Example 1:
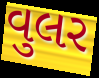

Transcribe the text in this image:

વુલર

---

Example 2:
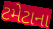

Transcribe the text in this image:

ટમેટાના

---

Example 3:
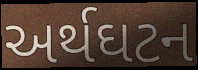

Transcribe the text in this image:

અર્થઘટન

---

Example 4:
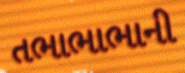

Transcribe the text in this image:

તભાભાભાની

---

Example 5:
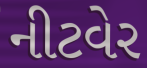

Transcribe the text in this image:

નીટવેર